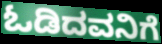
ಓಡಿದವನಿಗೆ